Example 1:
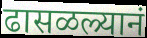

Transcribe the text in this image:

ढासळल्यानं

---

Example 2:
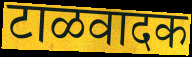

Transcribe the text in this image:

टाळवादक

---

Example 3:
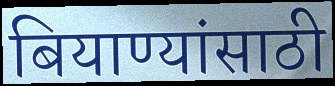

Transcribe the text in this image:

बियाण्यांसाठी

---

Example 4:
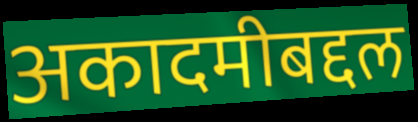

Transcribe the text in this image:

अकादमीबद्दल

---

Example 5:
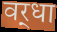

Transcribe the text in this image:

वर्धा